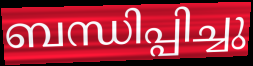
ബന്ധിപ്പിച്ചു